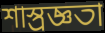
শাস্ত্রজ্ঞতা